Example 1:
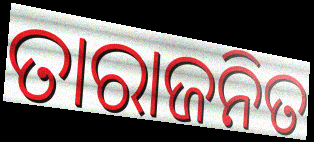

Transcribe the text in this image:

ତାରାଜନିତ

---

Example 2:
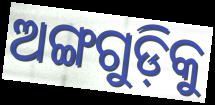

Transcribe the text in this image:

ଅଙ୍ଗଗୁଡ଼ିକୁ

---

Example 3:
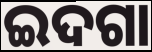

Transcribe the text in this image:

ଇଦଗା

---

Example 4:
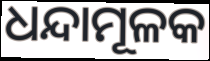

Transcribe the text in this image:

ଧନ୍ଦାମୂଳକ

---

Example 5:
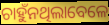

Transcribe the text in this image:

ଚାହୁଁନଥିଲାବେଳେ